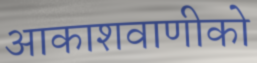
आकाशवाणीको